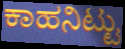
ಕಾಹನಿಟ್ಟು